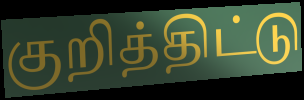
குறித்திட்டு